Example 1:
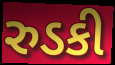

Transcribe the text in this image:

રુડકી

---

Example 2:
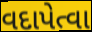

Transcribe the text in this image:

વદાપેત્વા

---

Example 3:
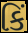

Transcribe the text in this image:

કિં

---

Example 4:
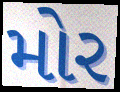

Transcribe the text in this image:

મોર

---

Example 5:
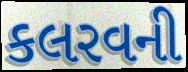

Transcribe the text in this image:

કલરવની